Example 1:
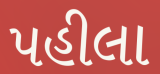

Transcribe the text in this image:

પહીલા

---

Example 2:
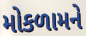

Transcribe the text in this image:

મોકળામને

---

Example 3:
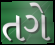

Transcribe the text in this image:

તગે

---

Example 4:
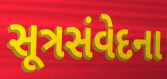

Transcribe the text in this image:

સૂત્રસંવેદના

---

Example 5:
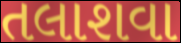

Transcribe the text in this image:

તલાશવા